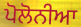
ਪੋਲੋਨੀਆ